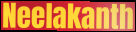
Neelakanth